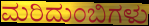
ಮರಿದುಂಬಿಗಳು